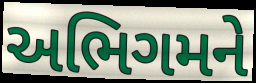
અભિગમને